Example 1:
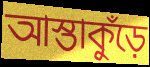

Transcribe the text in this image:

আস্তাকুঁড়ে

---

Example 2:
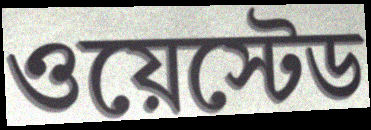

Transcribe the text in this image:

ওয়েস্টেড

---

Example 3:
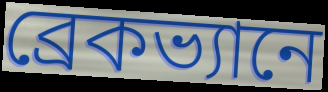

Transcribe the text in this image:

ব্রেকভ্যানে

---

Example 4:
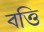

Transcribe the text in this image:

বত্তি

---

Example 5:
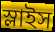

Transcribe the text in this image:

স্লাইস